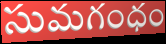
సుమగంధం